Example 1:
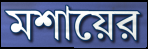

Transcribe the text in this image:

মশায়ের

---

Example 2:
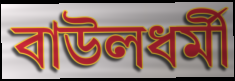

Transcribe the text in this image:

বাউলধর্মী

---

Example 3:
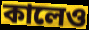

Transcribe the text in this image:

কালেও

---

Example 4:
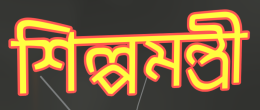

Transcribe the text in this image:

শিল্পমন্ত্রী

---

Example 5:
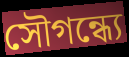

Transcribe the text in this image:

সৌগন্ধ্যে